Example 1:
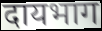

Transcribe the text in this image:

दायभाग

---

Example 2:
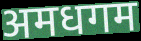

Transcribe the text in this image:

अमधगम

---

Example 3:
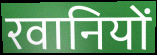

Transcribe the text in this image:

रवानियों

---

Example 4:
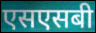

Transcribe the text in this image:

एसएसबी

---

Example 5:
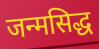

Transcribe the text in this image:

जन्मसिद्ध